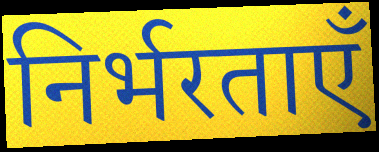
निर्भरताएँ